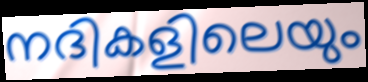
നദികളിലെയും